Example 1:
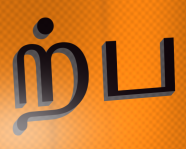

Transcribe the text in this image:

ற்ப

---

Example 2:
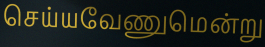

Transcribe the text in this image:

செய்யவேணுமென்று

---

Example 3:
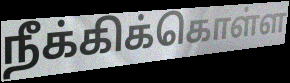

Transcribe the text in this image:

நீக்கிக்கொள்ள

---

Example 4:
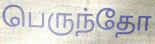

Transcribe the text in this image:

பெருந்தோ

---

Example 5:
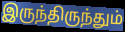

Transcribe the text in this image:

இருந்திருந்தும்